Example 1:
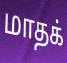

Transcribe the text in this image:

மாதக்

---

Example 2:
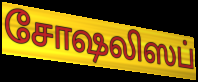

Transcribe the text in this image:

சோஷலிஸப்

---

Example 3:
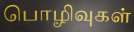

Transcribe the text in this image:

பொழிவுகள்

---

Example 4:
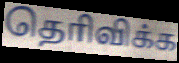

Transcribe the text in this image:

தெரிவிக்க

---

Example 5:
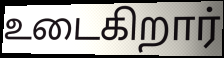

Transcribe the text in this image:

உடைகிறார்